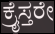
ಕ್ರೈಸ್ತರೇ